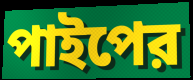
পাইপের